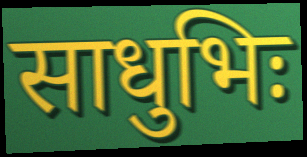
साधुभिः